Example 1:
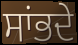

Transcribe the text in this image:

ਸਾਂਭਦੇ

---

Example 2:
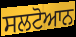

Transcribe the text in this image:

ਸਲਟੋਆਨ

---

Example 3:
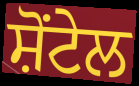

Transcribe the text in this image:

ਸ਼ੋਂਟੇਲ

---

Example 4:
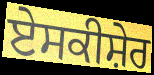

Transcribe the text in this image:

ਏਸਕੀਸ਼ੇਰ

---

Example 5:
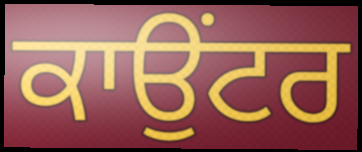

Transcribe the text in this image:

ਕਾਉਂਟਰ